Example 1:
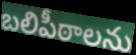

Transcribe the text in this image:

బలిపీఠాలను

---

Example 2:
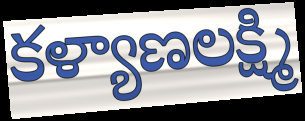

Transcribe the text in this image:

కళ్యాణలక్ష్మి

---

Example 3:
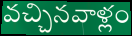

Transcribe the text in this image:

వచ్చినవాళ్లం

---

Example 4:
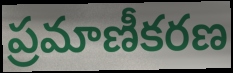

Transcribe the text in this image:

ప్రమాణీకరణ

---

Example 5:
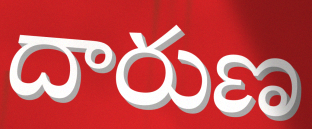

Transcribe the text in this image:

దారుణ